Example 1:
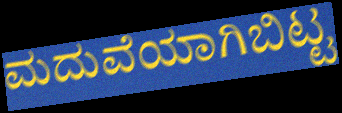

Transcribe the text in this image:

ಮದುವೆಯಾಗಿಬಿಟ್ಟ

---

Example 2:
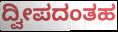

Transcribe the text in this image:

ದ್ವೀಪದಂತಹ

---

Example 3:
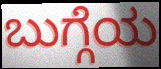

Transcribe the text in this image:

ಬುಗ್ಗೆಯ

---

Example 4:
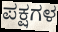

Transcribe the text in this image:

ಪಕ್ಷಗಳ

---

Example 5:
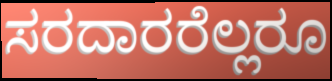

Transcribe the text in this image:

ಸರದಾರರೆಲ್ಲರೂ